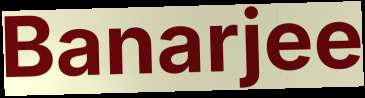
Banarjee